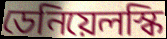
ডেনিয়েলস্কি